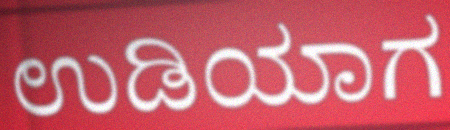
ಉಡಿಯಾಗ